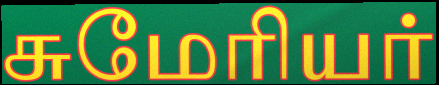
சுமேரியர்